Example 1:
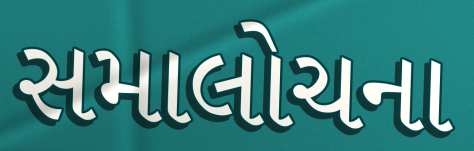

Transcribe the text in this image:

સમાલોચના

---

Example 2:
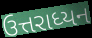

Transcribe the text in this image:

ઉત્તરાધ્યન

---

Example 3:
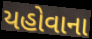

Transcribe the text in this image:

યહોવાના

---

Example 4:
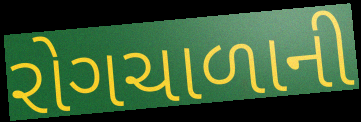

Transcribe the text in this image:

રોગચાળાની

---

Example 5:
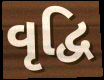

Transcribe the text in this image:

વૃદ્વિ